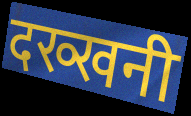
दख्खनी